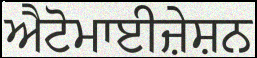
ਐਟੋਮਾਈਜ਼ੇਸ਼ਨ